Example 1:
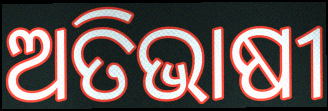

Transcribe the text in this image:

ଅତିଭାଷୀ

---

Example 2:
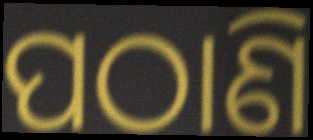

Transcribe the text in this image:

ପଠାଣି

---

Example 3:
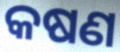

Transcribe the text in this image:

କଷଣ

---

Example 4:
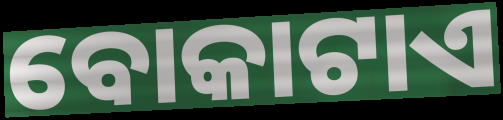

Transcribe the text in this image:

ବୋକାଟାଏ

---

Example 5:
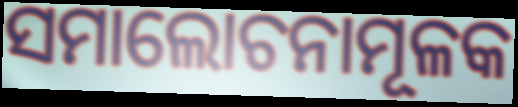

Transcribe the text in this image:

ସମାଲୋଚନାମୂଳକ